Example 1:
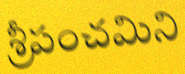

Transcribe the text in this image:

శ్రీపంచమిని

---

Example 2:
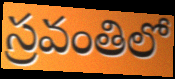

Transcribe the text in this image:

స్రవంతిలో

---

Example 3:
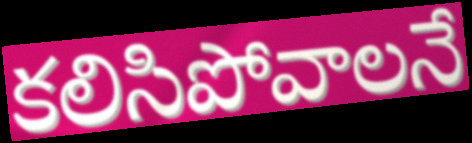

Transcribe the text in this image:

కలిసిపోవాలనే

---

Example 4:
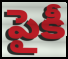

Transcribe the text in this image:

పైకీ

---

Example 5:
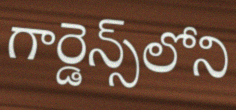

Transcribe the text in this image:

గార్డెన్స్‌లోని